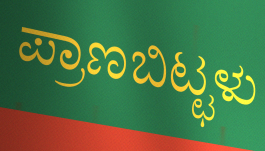
ಪ್ರಾಣಬಿಟ್ಟಳು